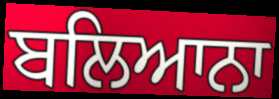
ਬਲਿਆਨਾ